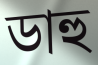
ডাহু